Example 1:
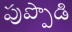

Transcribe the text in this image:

పుప్పొడి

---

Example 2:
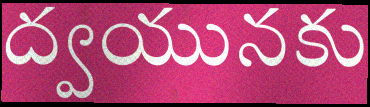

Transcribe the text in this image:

ద్వయునకు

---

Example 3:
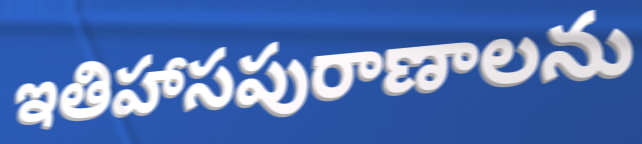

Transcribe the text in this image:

ఇతిహాసపురాణాలను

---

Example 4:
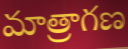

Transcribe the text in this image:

మాత్రాగణ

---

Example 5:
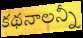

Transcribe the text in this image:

కథనాలన్నీ